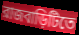
রাজবাড়িটিতে